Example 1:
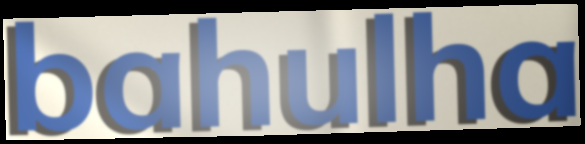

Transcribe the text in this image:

bahulha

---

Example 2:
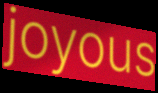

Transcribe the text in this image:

joyous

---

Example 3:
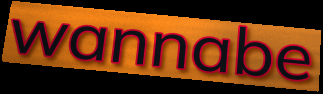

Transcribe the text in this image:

wannabe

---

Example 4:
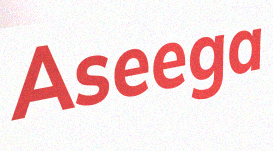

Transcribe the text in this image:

Aseega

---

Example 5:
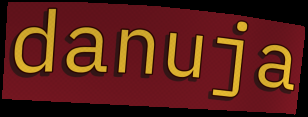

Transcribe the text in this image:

danuja